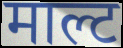
माल्ट